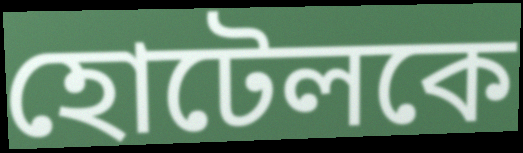
হোটেলকে